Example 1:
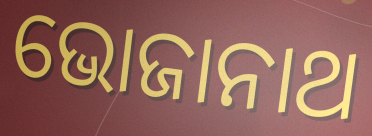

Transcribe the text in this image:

ଭୋଜାନାଥ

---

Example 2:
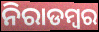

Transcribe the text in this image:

ନିରାଡମ୍ଵର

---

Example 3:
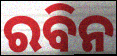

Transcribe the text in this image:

ରବିନ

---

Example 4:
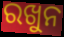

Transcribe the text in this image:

ରଖୁନ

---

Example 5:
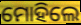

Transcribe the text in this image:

ମୋହିଲେ